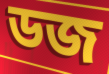
ডজ